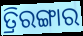
ତ୍ରିରଙ୍ଗାର